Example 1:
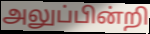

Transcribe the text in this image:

அலுப்பின்றி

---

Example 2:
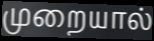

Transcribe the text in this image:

முறையால்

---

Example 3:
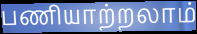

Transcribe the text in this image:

பணியாற்றலாம்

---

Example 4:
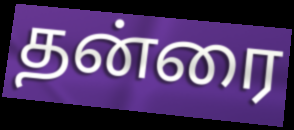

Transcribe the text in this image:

தன்ரை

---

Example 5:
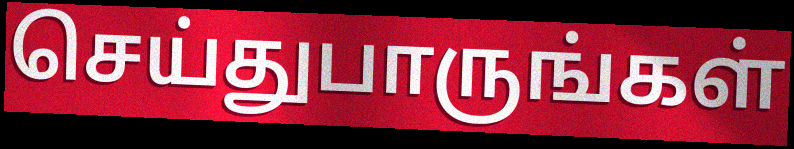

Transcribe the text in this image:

செய்துபாருங்கள்